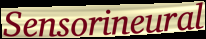
Sensorineural